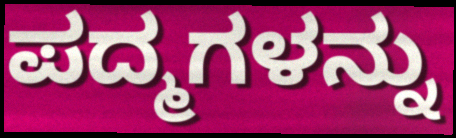
ಪದ್ಮಗಳನ್ನು